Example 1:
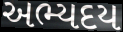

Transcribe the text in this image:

અભ્યદય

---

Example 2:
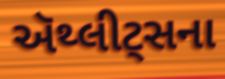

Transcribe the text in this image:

ઍથ્લીટ્સના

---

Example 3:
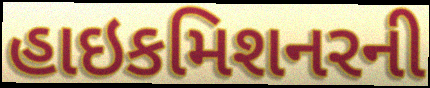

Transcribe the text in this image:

હાઇકમિશનરની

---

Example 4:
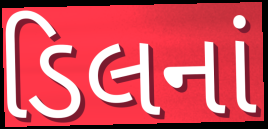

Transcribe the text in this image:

ડિલનાં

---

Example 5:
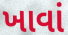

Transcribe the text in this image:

ખાવાં